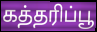
கத்தரிப்பூ